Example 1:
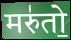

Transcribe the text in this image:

मरु॑तो॒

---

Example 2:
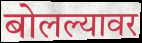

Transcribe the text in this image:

बोलल्यावर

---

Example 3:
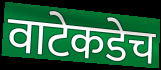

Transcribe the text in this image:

वाटेकडेच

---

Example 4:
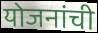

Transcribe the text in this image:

योजनांची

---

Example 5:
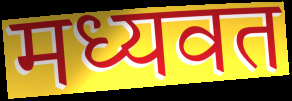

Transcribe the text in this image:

मध्यवत